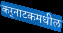
कर्नाटकमधील